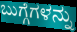
ಬುಗ್ಗೆಗಳನ್ನು